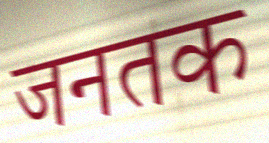
जनतक